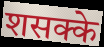
शसक्के